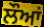
ਲੌਆਂ